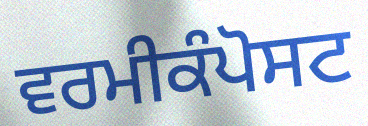
ਵਰਮੀਕੰਪੋਸਟ